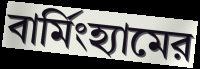
বার্মিংহ্যামের